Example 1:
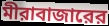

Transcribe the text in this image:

মীরাবাজারের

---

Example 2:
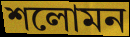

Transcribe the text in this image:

শলোমন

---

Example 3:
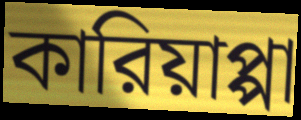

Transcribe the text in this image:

কারিয়াপ্পা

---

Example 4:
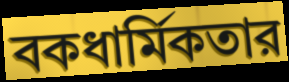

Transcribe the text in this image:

বকধার্মিকতার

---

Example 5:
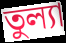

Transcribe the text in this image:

তুল্যা